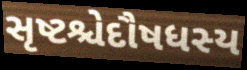
સૃષ્ટશ્ચેદૌષધસ્ય